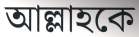
আল্লাহকে